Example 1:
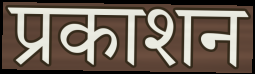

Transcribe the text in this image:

प्रकाशन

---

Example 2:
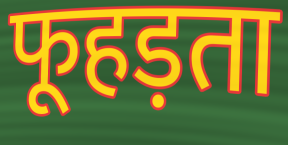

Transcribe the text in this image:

फूहड़ता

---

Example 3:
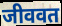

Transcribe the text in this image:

जीववत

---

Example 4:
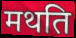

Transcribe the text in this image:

मथति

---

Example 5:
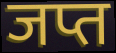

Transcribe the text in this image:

जप्त